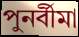
পুনর্বীমা